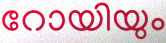
റോയിയും